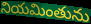
నియమింతును